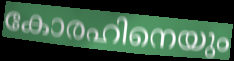
കോരഹിനെയും